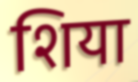
शिया